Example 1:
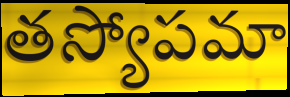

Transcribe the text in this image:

తస్యోపమా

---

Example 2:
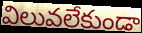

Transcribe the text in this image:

విలువలేకుండా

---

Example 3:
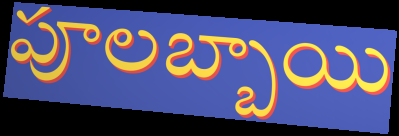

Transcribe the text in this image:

పూలబ్బాయి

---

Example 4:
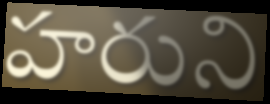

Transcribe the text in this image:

హరుని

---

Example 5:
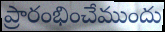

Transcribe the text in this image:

ప్రారంభించేముందు